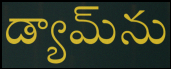
డ్యామ్‌ను